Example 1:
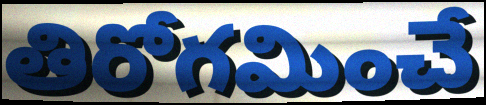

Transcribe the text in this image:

తిరోగమించే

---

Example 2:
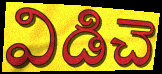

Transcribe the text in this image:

విడిచె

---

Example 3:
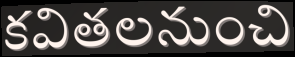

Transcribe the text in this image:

కవితలనుంచి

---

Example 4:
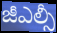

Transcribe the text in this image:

జీఎల్సీ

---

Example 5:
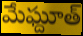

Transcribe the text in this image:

మేఘ్దూత్